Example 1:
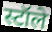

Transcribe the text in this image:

स्टॉले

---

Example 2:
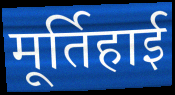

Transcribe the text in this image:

मूर्तिहाई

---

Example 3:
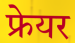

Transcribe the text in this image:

फ्रेयर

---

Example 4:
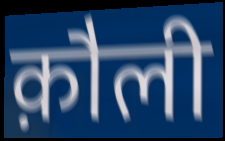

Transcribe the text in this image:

क़ौली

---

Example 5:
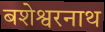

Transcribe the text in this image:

बशेश्वरनाथ